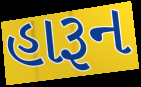
હારૂન